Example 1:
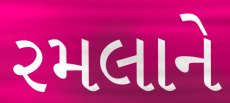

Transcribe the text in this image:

રમલાને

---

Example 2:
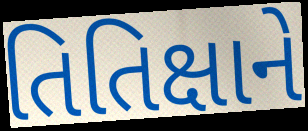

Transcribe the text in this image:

તિતિક્ષાને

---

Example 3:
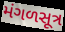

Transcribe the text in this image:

મંગળસૂત્ર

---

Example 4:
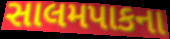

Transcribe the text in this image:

સાલમપાકના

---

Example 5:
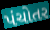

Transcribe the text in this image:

પંચોતર